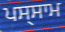
ਪਸ੍ਸਾਮ